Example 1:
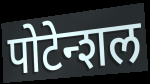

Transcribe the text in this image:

पोटेन्शल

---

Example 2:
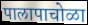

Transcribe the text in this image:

पालापाचोळा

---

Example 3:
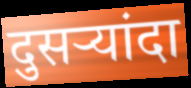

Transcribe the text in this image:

दुसऱ्यांदा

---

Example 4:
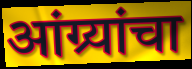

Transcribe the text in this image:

आंग्र्यांचा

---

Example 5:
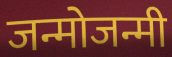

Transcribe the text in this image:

जन्मोजन्मी